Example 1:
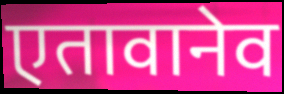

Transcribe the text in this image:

एतावानेव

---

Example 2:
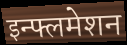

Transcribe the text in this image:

इन्फ्लमेशन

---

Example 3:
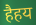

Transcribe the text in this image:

हैहय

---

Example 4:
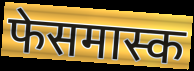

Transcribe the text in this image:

फेसमास्क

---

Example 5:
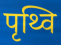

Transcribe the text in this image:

पृथ्वि